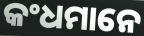
କଂଧମାନେ